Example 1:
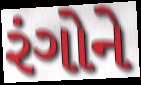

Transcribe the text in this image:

રંગોને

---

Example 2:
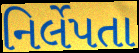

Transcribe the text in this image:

નિર્લેપતા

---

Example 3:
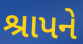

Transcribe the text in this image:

શ્રાપને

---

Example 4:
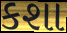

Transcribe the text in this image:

કશા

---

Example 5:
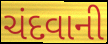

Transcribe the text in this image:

ચંદવાની